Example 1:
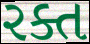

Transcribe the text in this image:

રક્ત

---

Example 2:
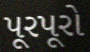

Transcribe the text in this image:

પૂરપૂરો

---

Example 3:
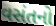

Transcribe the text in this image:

વસંતનો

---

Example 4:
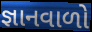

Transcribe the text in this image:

જ્ઞાનવાળો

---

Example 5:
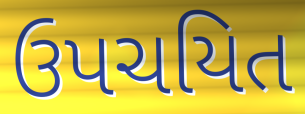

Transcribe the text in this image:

ઉપચયિત